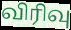
விரிவு